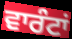
ਵਾਰੰਟਾਂ